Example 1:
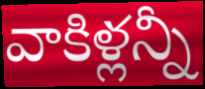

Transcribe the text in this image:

వాకిళ్లన్నీ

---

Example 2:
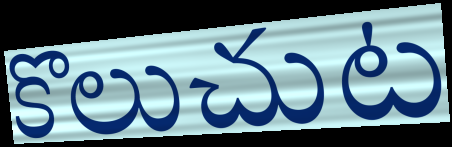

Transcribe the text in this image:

కొలుచుట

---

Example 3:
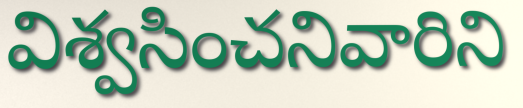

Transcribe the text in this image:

విశ్వసించనివారిని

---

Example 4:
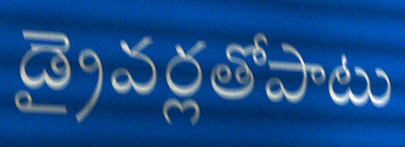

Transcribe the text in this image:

డ్రైవర్లతోపాటు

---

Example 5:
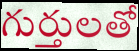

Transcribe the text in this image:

గుర్తులతో